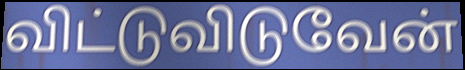
விட்டுவிடுவேன்